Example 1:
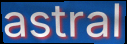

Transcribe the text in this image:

astral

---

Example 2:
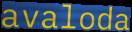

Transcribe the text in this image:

avaloda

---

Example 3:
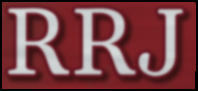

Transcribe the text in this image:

RRJ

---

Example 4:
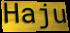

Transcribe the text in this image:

Haju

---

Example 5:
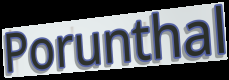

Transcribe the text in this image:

Porunthal